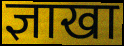
ज्ञाखा